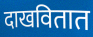
दाखवितात